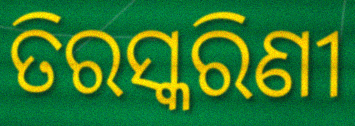
ତିରସ୍କରିଣୀ